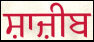
ਸ਼ਾਜ਼ੀਬ